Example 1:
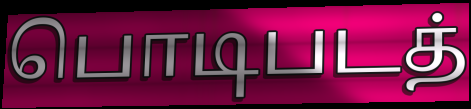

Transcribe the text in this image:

பொடிபடத்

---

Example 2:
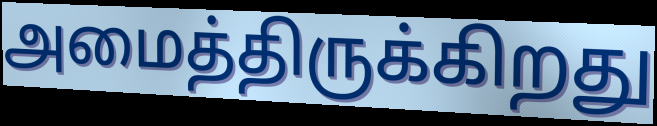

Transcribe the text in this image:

அமைத்திருக்கிறது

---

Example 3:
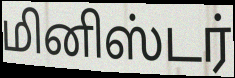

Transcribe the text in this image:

மினிஸ்டர்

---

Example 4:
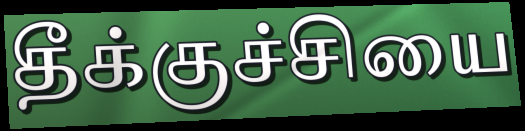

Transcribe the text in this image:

தீக்குச்சியை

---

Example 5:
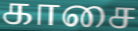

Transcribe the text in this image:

காசை